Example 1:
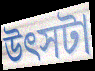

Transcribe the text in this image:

উৎসটা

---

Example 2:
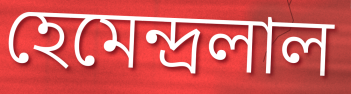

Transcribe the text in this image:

হেমেন্দ্রলাল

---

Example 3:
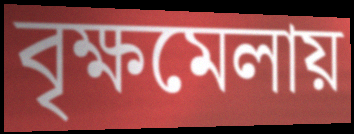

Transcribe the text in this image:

বৃক্ষমেলায়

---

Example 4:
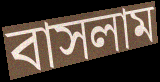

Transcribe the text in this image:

বাসলাম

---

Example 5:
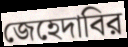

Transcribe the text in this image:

জেহেদাবির